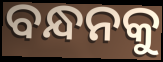
ବନ୍ଧନକୁ